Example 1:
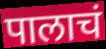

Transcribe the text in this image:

पालाचं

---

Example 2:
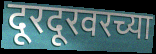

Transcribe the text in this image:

दूरदूरवरच्या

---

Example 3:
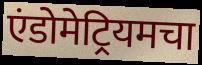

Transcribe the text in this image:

एंडोमेट्रियमचा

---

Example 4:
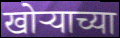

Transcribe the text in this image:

खोऱ्याच्या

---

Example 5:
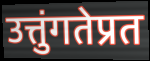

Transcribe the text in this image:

उत्तुंगतेप्रत